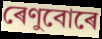
ৰেণুবোৰে